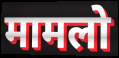
मामलो